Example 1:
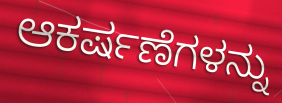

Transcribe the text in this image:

ಆಕರ್ಷಣೆಗಳನ್ನು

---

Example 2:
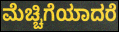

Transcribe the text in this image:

ಮೆಚ್ಚಿಗೆಯಾದರೆ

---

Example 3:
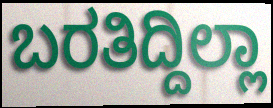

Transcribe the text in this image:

ಬರತಿದ್ದಿಲ್ಲಾ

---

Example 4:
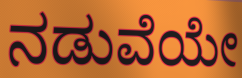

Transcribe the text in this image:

ನಡುವೆಯೇ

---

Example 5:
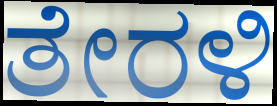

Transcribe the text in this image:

ತೇರಳಿ